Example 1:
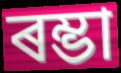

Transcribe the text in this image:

ৰম্ভা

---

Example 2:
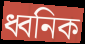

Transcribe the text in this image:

ধ্বনিক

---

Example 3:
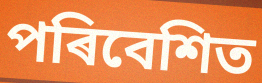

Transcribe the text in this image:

পৰিবেশিত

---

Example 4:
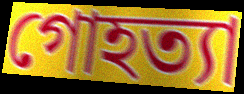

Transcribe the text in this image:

গোহত্যা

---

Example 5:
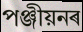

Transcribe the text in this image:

পঞ্জীয়নৰ